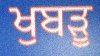
ਖੁਬੜੂ